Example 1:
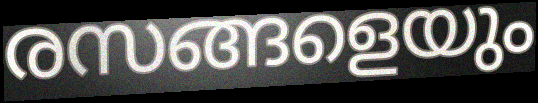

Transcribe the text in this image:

രസങ്ങളെയും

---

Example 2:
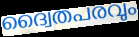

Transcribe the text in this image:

ദ്വൈതപരവും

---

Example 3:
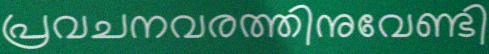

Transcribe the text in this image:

പ്രവചനവരത്തിനുവേണ്ടി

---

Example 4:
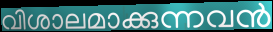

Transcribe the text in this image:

വിശാലമാക്കുന്നവൻ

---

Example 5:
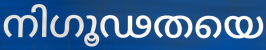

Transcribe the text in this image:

നിഗൂഢതയെ